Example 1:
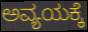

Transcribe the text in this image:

ಅವ್ಯಯಕ್ಕೆ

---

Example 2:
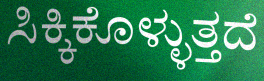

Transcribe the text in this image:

ಸಿಕ್ಕಿಕೊಳ್ಳುತ್ತದೆ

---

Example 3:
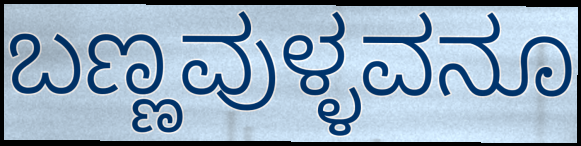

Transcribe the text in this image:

ಬಣ್ಣವುಳ್ಳವನೂ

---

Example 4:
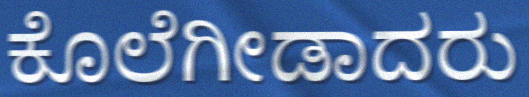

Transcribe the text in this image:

ಕೊಲೆಗೀಡಾದರು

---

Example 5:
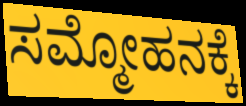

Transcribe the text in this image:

ಸಮ್ಮೋಹನಕ್ಕೆ